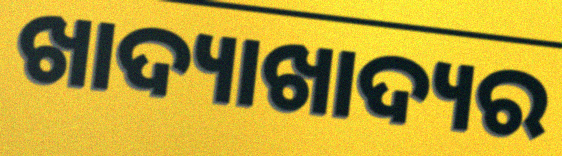
ଖାଦ୍ୟାଖାଦ୍ୟର